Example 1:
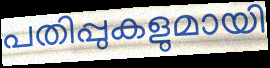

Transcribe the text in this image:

പതിപ്പുകളുമായി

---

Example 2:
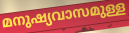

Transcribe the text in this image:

മനുഷ്യവാസമുള്ള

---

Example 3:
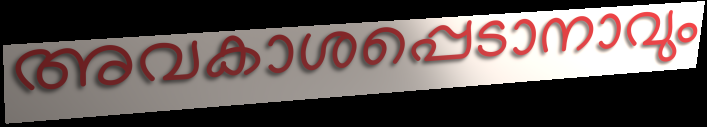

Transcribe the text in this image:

അവകാശപ്പെടാനാവും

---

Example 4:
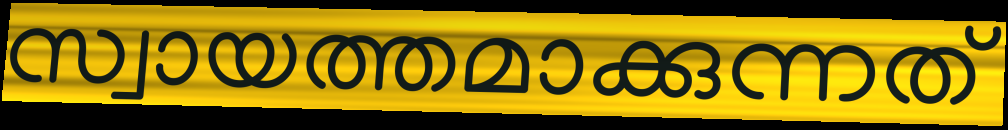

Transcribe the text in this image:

സ്വായത്തമാക്കുന്നത്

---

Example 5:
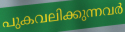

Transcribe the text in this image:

പുകവലിക്കുന്നവർ